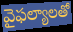
వైఫల్యాలతో